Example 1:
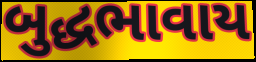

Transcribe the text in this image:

બુદ્ધભાવાય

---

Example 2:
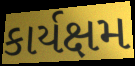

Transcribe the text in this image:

કાર્યક્ષમ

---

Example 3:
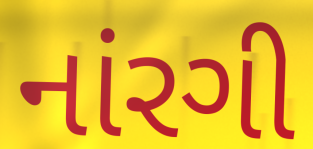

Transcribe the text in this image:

નાંરગી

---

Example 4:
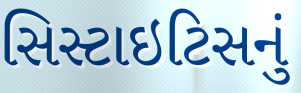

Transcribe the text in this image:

સિસ્ટાઇટિસનું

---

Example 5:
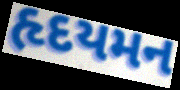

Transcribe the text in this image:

હૃદયમન